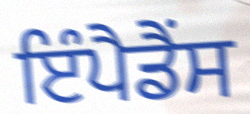
ਇੰਪੈਡੈਂਸ